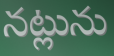
నట్లును